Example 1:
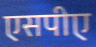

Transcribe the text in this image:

एसपीए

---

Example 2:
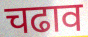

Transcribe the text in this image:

चढाव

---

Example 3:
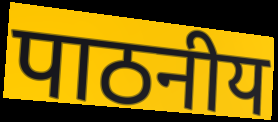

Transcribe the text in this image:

पाठनीय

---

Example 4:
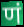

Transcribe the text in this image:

णं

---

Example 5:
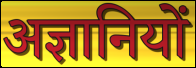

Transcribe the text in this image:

अज्ञानियों